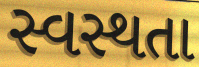
સ્વસ્થતા